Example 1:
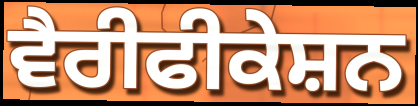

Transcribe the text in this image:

ਵੈਰੀਫੀਕੇਸ਼ਨ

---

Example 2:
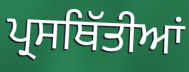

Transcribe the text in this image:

ਪ੍ਰਸਥਿੱਤੀਆਂ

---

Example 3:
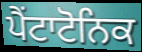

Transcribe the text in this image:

ਪੈਂਟਾਟੋਨਿਕ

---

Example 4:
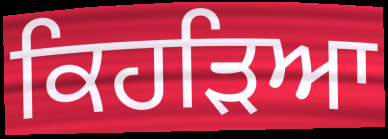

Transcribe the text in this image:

ਕਿਹੜਿਆ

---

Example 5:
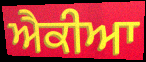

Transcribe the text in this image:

ਐਕੀਆ